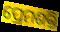
ପ୍ରେମଶକ୍ତି